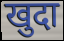
खुदा